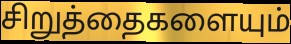
சிறுத்தைகளையும்